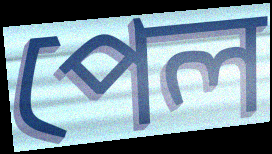
পেল